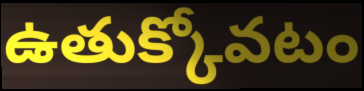
ఉతుక్కోవటం